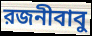
রজনীবাবু